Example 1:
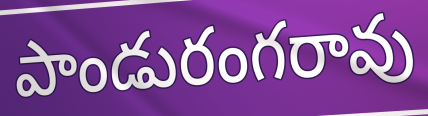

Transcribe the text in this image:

పాండురంగరావు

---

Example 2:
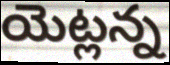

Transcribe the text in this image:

యెట్లన్న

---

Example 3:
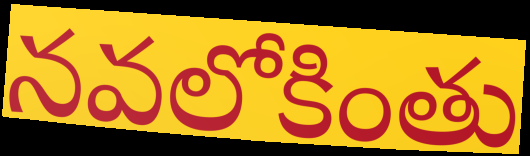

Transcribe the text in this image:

నవలోకింతు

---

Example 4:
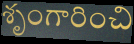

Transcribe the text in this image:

శృంగారించి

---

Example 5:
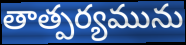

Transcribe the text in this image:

తాత్పర్యమును